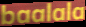
baalala